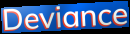
Deviance